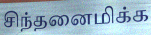
சிந்தனைமிக்க